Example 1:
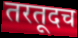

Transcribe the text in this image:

तरतूदच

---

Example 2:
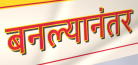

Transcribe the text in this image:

बनल्यानंतर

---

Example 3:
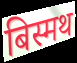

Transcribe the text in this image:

बिस्मथ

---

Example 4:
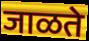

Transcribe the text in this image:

जाळते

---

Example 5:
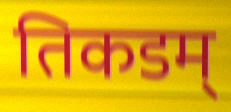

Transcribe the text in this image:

तिकडम्